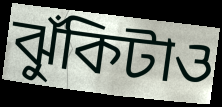
ঝুঁকিটাও